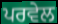
ਪਰਵੇਲ